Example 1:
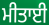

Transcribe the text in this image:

ਮੀਤਾਈ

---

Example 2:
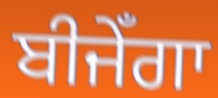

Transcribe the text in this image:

ਬੀਜੇਁਗਾ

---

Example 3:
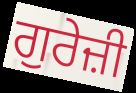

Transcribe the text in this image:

ਗੁਰੇਜ਼ੀ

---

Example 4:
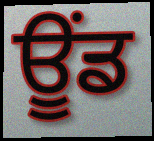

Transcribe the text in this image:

ਊਂਡ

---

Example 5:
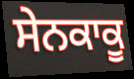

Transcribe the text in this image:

ਸੇਨਕਾਕੂ